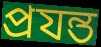
প্রযন্ত